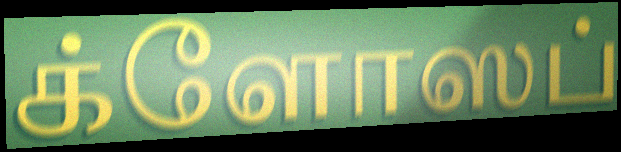
க்ளோஸப்